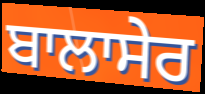
ਬਾਲਾਸੇਰ